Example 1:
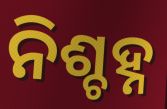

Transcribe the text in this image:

ନିଶ୍ଚହ୍ନ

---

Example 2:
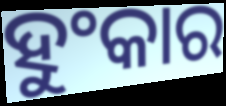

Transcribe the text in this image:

ହୁଂକାର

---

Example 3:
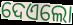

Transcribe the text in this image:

ଦେଏଲୋ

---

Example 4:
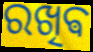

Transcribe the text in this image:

ରଖିଵ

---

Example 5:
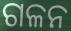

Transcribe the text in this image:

ଗଳନ